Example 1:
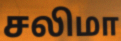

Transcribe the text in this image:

சலிமா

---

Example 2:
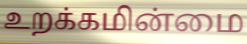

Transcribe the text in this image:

உறக்கமின்மை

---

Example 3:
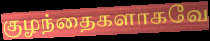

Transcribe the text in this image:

குழந்தைகளாகவே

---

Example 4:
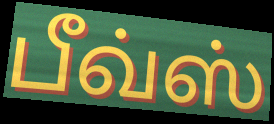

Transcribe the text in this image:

பீவ்ஸ்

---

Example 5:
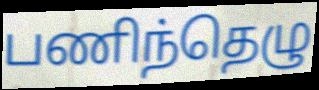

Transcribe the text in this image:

பணிந்தெழு